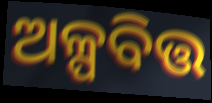
ଅଳ୍ପବିତ୍ତ